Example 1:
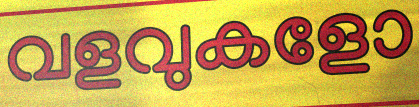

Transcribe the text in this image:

വളവുകളോ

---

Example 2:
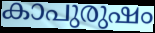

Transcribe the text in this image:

കാപുരുഷം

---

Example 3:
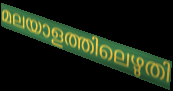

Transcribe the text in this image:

മലയാളത്തിലെഴുതി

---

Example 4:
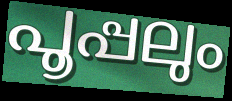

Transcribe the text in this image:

പൂപ്പലും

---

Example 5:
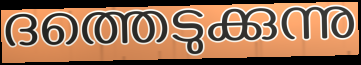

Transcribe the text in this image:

ദത്തെടുക്കുന്നു